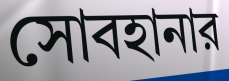
সোবহানার